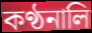
কণ্ঠনালি